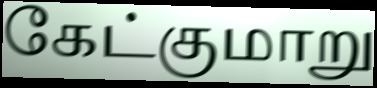
கேட்குமாறு